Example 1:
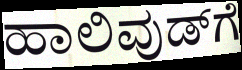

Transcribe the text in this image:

ಹಾಲಿವುಡ್‌ಗೆ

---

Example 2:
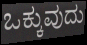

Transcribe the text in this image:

ಒಕ್ಕುವುದು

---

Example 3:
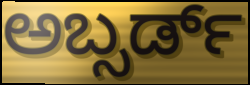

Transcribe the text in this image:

ಅಬ್ಸರ್ಡ್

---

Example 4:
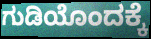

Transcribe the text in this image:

ಗುಡಿಯೊಂದಕ್ಕೆ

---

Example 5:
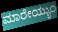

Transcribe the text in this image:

ಮಾರೇಯ್ಯುಂ